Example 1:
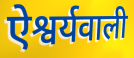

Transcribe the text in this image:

ऐश्वर्यवाली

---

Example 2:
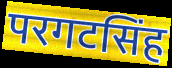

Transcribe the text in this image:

परगटसिंह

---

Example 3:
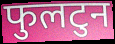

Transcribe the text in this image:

फुलटुन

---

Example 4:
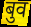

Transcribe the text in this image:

बुव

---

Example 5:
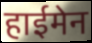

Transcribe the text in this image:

हाईमेन